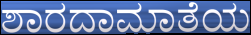
ಶಾರದಾಮಾತೆಯ